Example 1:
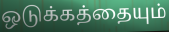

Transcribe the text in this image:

ஒடுக்கத்தையும்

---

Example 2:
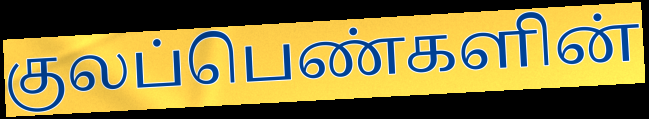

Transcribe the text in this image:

குலப்பெண்களின்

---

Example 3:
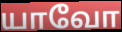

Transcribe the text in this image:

யாவோ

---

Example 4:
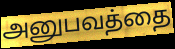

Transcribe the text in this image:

அனுபவத்தை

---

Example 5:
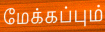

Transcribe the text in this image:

மேக்கப்பும்